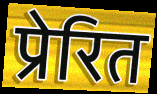
प्रेरित